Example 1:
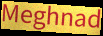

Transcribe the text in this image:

Meghnad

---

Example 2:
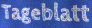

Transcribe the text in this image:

Tageblatt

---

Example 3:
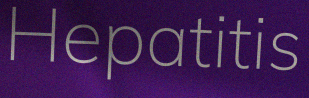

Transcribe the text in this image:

Hepatitis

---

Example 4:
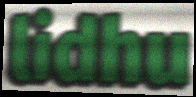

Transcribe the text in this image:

lidhu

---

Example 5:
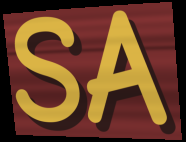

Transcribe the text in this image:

SA